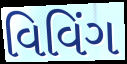
વિવિંગ